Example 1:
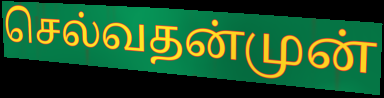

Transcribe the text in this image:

செல்வதன்முன்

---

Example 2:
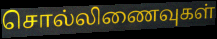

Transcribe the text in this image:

சொல்லிணைவுகள்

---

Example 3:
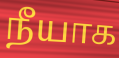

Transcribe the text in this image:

நீயாக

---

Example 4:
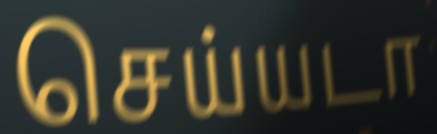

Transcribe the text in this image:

செய்யடா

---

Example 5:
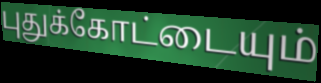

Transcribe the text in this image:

புதுக்கோட்டையும்